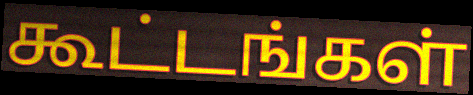
கூட்டங்கள்